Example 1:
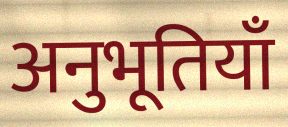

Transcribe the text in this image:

अनुभूतियाँ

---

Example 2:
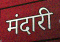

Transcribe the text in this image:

मंदारी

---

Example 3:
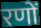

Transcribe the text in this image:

रणों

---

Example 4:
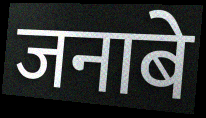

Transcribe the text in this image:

जनाबे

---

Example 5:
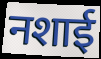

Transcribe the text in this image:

नशाई